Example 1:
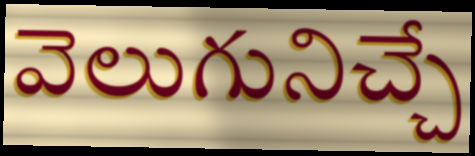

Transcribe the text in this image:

వెలుగునిచ్చే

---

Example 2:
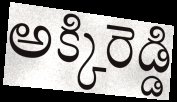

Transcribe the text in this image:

అక్కిరెడ్డి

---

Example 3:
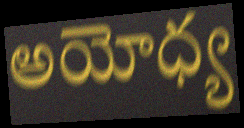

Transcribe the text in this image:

అయోధ్య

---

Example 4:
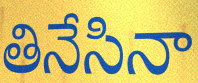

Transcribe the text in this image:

తినేసినా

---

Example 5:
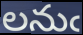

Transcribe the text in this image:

లనుఁ